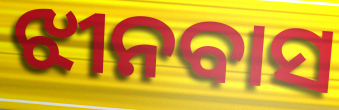
ଝୀନବାସ